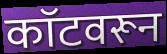
कॉटवरून